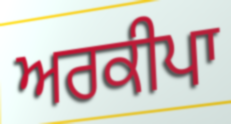
ਅਰਕੀਪਾ